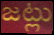
జట్లు